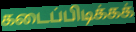
கடைப்பிடிக்கக்